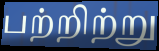
பற்றிற்று